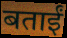
बताईं